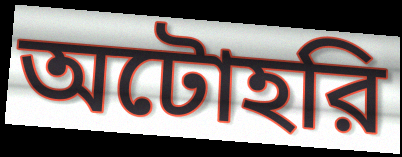
অটোহরি